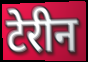
टेरीन